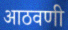
आठवणी